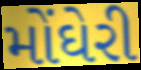
મોંઘેરી